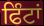
ਫਿੰਟਾਂ